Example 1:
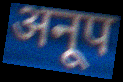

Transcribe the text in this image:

अनूप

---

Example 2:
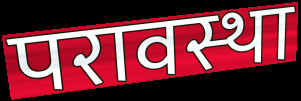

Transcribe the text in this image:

परावस्था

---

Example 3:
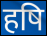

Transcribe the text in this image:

हषि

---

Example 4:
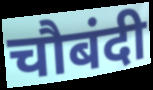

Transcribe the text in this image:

चौबंदी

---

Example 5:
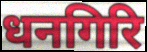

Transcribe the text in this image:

धनगिरि